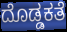
ದೊಡ್ಡಕತೆ